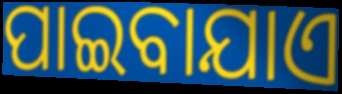
ପାଇବାଯାଏ